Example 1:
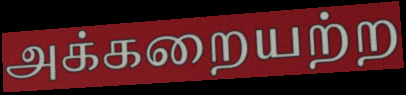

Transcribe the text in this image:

அக்கறையற்ற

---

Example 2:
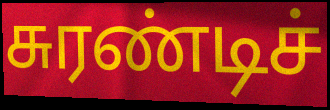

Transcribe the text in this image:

சுரண்டிச்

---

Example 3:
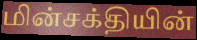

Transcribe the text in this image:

மின்சக்தியின்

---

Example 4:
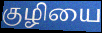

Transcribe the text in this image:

குழியை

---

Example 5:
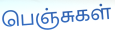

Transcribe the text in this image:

பெஞ்சுகள்